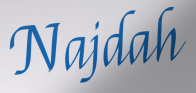
Najdah